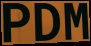
PDM